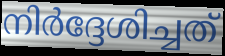
നിർദ്ദേശിച്ചത്